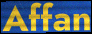
Affan